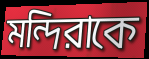
মন্দিরাকে